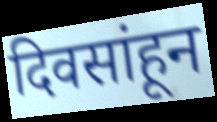
दिवसांहून